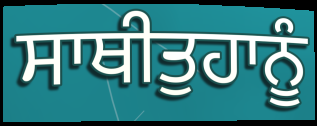
ਸਾਥੀਤੁਹਾਨੂੰ